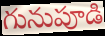
గునుపూడి